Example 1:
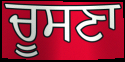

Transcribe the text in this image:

ਚੂਸਣਾ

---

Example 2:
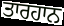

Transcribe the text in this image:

ਤਾਰਹਾਨ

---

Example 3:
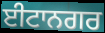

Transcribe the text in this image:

ਈਟਾਨਗਰ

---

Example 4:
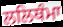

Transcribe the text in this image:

ਲਲਿਥੰਮਾ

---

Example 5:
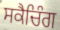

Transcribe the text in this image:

ਸਕੈਚਿੰਗ